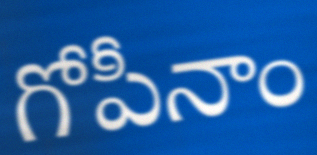
గోపీనాం